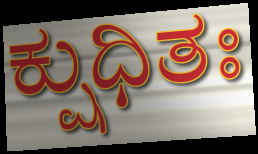
ಕ್ಷುಧಿತಃ